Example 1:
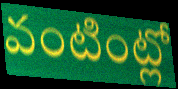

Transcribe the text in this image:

వంటింట్లో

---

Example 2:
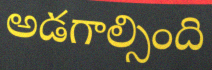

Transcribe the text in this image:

అడగాల్సింది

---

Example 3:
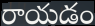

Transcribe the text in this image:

రాయడం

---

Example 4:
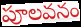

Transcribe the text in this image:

పూలవనం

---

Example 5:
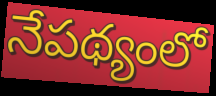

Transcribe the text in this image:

నేపథ్యంలో